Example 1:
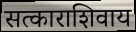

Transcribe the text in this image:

सत्काराशिवाय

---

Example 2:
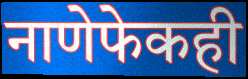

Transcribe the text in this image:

नाणेफेकही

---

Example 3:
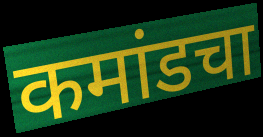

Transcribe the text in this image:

कमांडचा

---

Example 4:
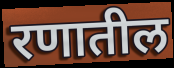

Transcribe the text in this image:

रणातील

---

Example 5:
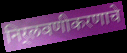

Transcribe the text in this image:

निर्लवणीकरणाचे